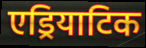
एड्रियाटिक